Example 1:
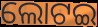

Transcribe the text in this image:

ଲୋଟଇ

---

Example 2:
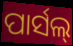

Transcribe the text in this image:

ପାର୍ସଲ୍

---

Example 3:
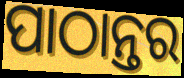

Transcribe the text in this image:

ପାଠାନ୍ତର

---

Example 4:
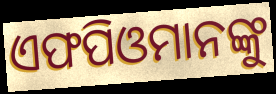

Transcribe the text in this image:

ଏଫପିଓମାନଙ୍କୁ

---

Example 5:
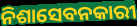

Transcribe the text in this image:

ନିଶାସେବନକାରୀ